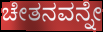
ಚೇತನವನ್ನೇ